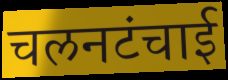
चलनटंचाई